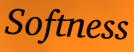
Softness